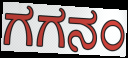
ಗಗನಂ